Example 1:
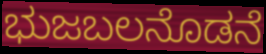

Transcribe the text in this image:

ಭುಜಬಲನೊಡನೆ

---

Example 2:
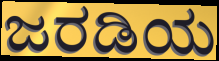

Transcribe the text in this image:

ಜರಡಿಯ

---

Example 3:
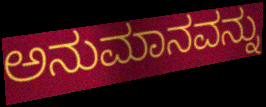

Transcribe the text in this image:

ಅನುಮಾನವನ್ನು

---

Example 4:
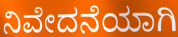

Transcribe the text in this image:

ನಿವೇದನೆಯಾಗಿ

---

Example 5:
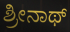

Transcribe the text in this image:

ಶ್ರೀನಾಥ್